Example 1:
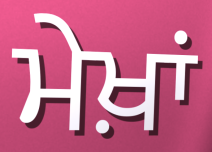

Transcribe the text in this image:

ਮੇਖ਼ਾਂ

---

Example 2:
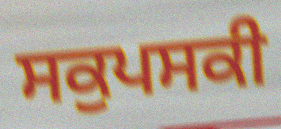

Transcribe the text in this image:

ਸਕੁਪਸਕੀ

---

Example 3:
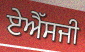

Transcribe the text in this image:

ਏਐੱਸਜੀ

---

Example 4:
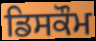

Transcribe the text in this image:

ਡਿਸਕੌਮ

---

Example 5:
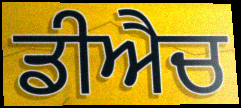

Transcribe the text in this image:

ਡੀਐਚ